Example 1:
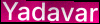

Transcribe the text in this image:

Yadavar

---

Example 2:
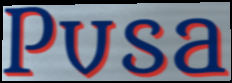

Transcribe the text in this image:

Pusa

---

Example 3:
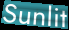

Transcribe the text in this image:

Sunlit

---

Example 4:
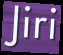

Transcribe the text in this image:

Jiri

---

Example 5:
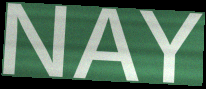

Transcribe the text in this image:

NAY